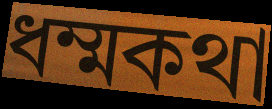
ধম্মকথা